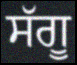
ਸੱਗੂ